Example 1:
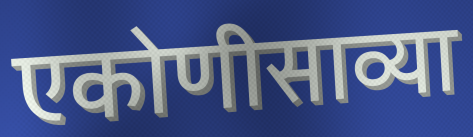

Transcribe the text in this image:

एकोणीसाव्या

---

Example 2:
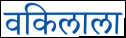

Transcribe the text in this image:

वकिलाला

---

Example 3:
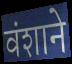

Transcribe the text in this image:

वंशाने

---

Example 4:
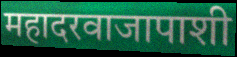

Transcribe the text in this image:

महादरवाजापाशी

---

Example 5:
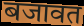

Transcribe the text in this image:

बजावत